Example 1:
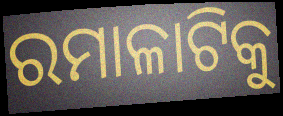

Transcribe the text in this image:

ରମାଳାଟିକୁ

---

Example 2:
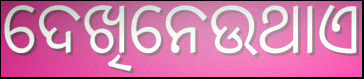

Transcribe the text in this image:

ଦେଖିନେଉଥାଏ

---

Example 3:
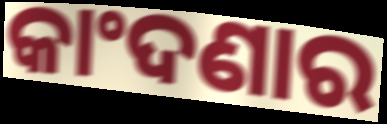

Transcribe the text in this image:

କାଂଦଣାର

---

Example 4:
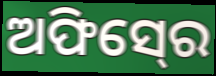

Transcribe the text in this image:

ଅଫିସ୍‍ରେ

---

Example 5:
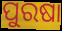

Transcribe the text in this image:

ପୁରଷା